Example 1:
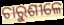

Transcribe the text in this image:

ଚାରୁଶୀଳେ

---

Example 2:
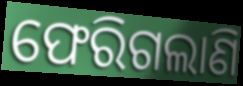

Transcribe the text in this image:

ଫେରିଗଲାଣି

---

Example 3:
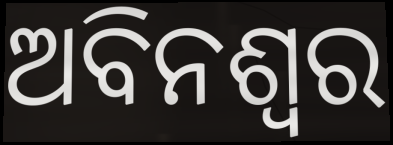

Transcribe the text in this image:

ଅବିନଶ୍ଵର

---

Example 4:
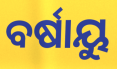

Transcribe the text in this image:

ବର୍ଷାୟୁ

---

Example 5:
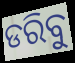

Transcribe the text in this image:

ଡରିବୁ